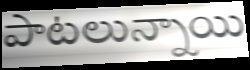
పాటలున్నాయి